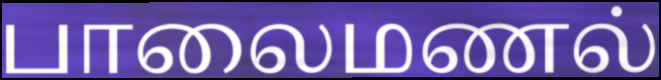
பாலைமணல்